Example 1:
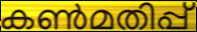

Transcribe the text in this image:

കൺമതിപ്പ്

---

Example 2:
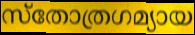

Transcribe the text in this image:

സ്തോത്രഗമ്യായ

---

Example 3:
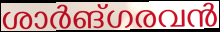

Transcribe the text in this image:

ശാർങ്ഗരവൻ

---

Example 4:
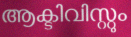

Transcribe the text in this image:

ആക്ടിവിസ്റ്റും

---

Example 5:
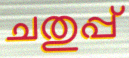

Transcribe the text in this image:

ചതുപ്പ്